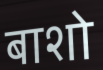
बाशो